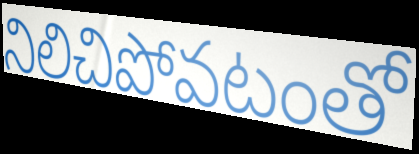
నిలిచిపోవటంతో